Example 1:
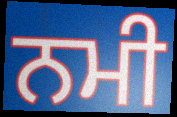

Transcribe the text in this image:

ਨਮੀ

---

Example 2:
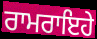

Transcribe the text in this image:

ਰਾਮਰਾਇਹੇ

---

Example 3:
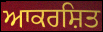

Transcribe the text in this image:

ਆਕਰਸ਼ਿਤ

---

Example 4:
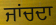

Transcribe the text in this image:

ਜਾਂਚਦਾ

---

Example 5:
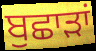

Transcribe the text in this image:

ਬੁਛਾੜਾਂ